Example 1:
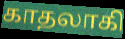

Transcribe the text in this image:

காதலாகி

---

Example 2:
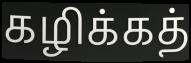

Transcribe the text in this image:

கழிக்கத்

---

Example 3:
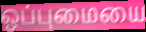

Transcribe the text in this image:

ஒப்புமையை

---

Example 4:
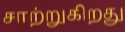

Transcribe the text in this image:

சாற்றுகிறது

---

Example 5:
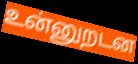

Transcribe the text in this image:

உன்னுறடன